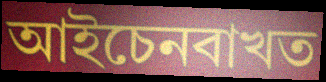
আইচেনবাখত